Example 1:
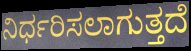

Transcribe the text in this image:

ನಿರ್ಧರಿಸಲಾಗುತ್ತದೆ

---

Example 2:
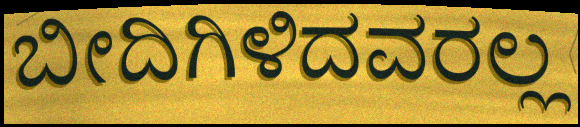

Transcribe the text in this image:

ಬೀದಿಗಿಳಿದವರಲ್ಲ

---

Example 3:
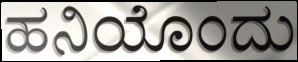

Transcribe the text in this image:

ಹನಿಯೊಂದು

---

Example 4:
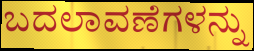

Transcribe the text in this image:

ಬದಲಾವಣೆಗಳನ್ನು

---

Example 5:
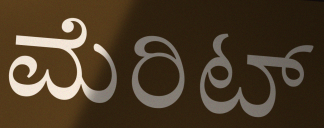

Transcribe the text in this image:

ಮೆರಿಟ್